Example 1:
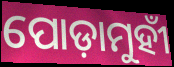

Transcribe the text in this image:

ପୋଡ଼ାମୁହୀଁ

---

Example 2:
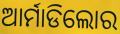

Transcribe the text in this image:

ଆର୍ମାଡିଲୋର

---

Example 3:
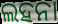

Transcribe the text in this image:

ଲହନା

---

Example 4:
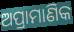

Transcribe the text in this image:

ଅପ୍ରାମାଣିକ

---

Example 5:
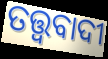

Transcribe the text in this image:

ତତ୍ତ୍ଵବାଦୀ